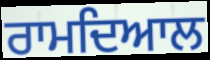
ਰਾਮਦਿਆਲ